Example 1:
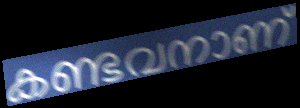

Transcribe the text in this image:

കണ്ടവനാണ്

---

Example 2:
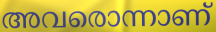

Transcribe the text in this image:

അവരൊന്നാണ്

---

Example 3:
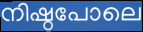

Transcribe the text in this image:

നിഷ്ഠപോലെ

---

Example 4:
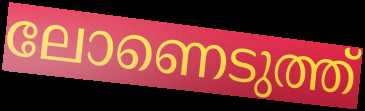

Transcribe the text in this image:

ലോണെടുത്ത്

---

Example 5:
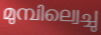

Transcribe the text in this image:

മുമ്പില്വെച്ചു